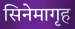
सिनेमागृह